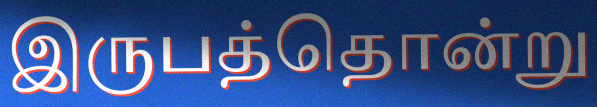
இருபத்தொன்று